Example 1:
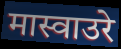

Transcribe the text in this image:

मास्वाउरे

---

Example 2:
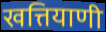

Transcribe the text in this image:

खत्तियाणी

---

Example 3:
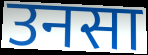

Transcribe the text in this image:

उनसा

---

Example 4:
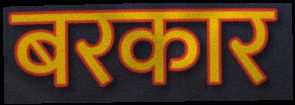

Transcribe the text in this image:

बरकार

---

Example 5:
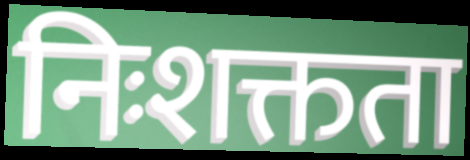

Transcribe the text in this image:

निःशक्तता